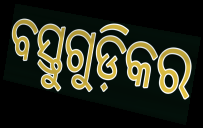
ବସ୍ତୁଗୁଡ଼ିକର